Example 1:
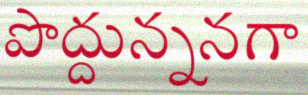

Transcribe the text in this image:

పొద్దున్ననగా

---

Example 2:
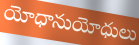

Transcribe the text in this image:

యోధానుయోధులు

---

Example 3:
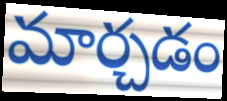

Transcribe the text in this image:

మార్చడం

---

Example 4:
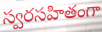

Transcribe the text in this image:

స్వరసహితంగా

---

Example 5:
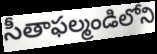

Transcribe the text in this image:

సీతాఫల్మండిలోని